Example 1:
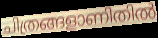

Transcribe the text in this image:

ചിത്രങ്ങളാണിതിൽ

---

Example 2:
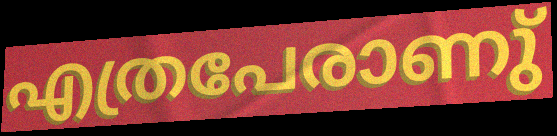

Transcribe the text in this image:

എത്രപേരാണു്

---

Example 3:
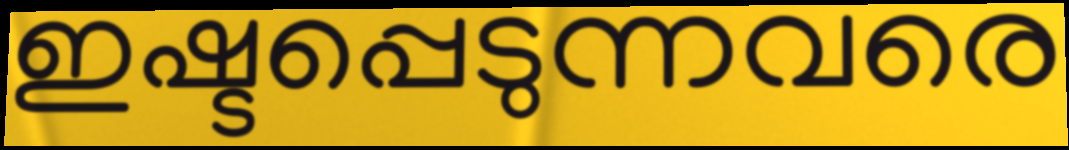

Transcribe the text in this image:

ഇഷ്ടപ്പെടുന്നവരെ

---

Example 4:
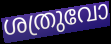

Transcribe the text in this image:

ശത്രുവോ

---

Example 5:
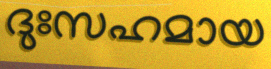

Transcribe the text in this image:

ദുഃസഹമായ